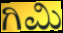
ಗಿಮಿ